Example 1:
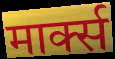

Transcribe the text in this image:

मार्क्‍स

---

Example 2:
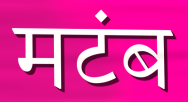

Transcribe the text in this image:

मटंब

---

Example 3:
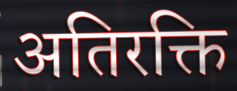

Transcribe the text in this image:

अतिरक्ति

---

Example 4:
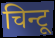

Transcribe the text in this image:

चिन्टू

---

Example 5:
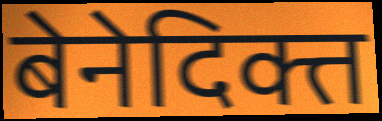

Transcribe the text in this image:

बेनेदिक्त